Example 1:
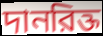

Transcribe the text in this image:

দানরিক্ত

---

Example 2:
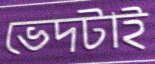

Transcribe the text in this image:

ভেদটাই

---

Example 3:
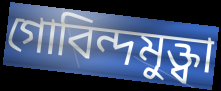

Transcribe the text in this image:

গোবিন্দমুক্ত্বা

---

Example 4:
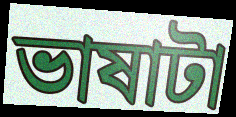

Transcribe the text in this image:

ভাষাটা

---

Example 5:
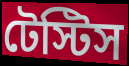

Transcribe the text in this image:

টেস্টিস